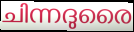
ചിന്നദുരൈ